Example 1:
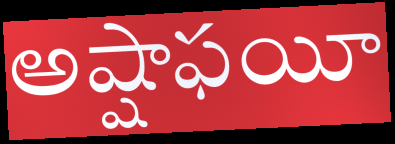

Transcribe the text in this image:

అష్షాఫయీ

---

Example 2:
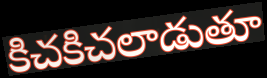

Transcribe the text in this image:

కిచకిచలాడుతూ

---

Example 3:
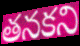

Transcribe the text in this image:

తనకని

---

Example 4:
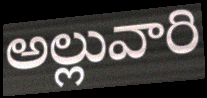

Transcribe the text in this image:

అల్లువారి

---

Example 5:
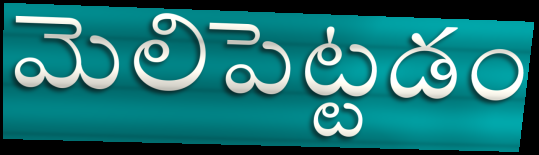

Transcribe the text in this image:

మెలిపెట్టడం